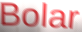
Bolar